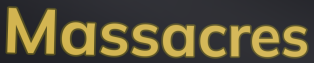
Massacres